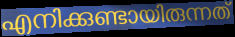
എനിക്കുണ്ടായിരുന്നത്